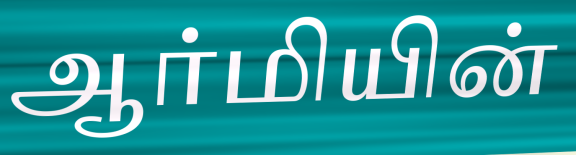
ஆர்மியின்